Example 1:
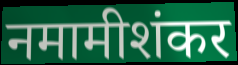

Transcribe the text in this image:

नमामीशंकर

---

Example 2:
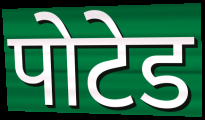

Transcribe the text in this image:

पोटेड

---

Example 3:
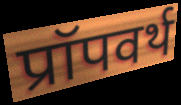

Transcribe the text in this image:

प्रॉपवर्थ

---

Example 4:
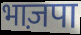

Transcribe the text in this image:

भाज़पा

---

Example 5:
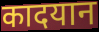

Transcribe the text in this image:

कादयान